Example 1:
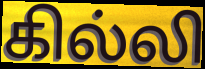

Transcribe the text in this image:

கில்லி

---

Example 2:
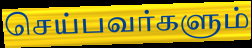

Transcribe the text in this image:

செய்பவர்களும்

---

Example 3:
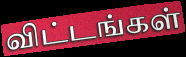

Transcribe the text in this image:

விட்டங்கள்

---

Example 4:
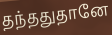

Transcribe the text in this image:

தந்ததுதானே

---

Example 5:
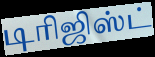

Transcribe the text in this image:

டிரிஜிஸ்ட்